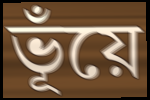
ভূঁয়ে